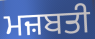
ਮਜ਼ਬਤੀ